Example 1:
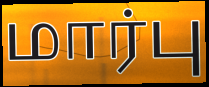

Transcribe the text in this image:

மார்பு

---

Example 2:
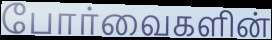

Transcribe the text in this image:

போர்வைகளின்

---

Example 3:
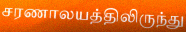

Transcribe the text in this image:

சரணாலயத்திலிருந்து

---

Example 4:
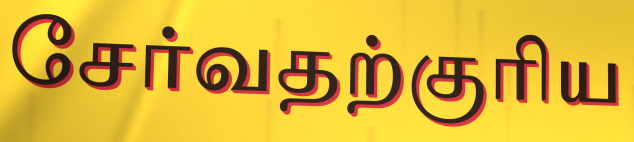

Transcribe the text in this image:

சேர்வதற்குரிய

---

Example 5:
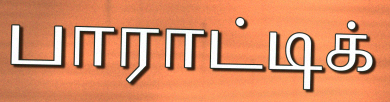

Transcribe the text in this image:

பாராட்டிக்